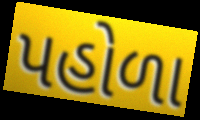
પહોળા